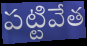
పట్టివేత